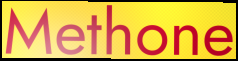
Methone